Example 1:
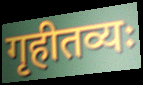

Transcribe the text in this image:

गृहीतव्यः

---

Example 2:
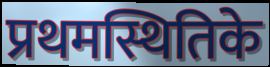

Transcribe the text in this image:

प्रथमस्थितिके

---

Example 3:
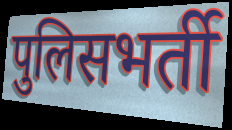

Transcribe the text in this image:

पुलिसभर्ती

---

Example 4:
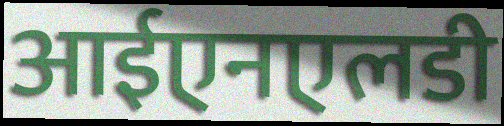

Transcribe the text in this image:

आईएनएलडी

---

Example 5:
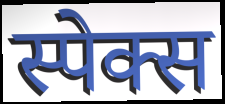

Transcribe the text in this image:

स्पेक्स